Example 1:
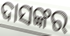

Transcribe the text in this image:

ଦାସଙ୍କର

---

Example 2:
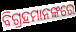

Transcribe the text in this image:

ବିଗ୍ରହମାନଙ୍କରେ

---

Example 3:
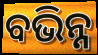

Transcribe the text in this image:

ବଭିନ୍ନ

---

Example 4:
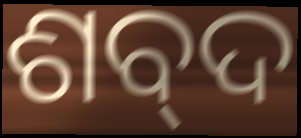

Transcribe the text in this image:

ଶବ୍‌ଦ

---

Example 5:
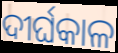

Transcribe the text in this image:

ଦୀର୍ଘକାଳ